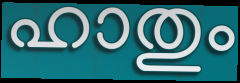
ഹാതും